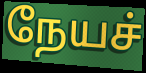
நேயச்